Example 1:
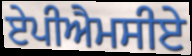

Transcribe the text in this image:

ਏਪੀਐਮਸੀਏ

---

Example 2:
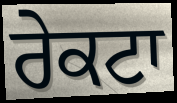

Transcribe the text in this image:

ਰੇਕਟਾ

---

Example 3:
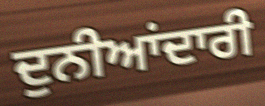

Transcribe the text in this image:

ਦੁਨੀਆਂਦਾਰੀ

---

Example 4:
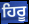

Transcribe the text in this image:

ਹਿਰੂ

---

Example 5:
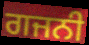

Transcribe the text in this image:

ਗਜਨੀ